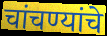
चांचण्यांचे